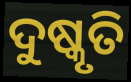
ଦୁଷ୍କୃତି